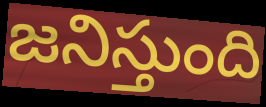
జనిస్తుంది